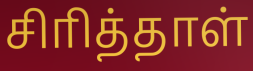
சிரித்தாள்